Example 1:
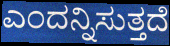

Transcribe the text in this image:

ಎಂದನ್ನಿಸುತ್ತದೆ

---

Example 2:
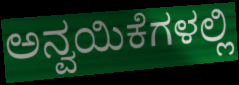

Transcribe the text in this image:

ಅನ್ವಯಿಕೆಗಳಲ್ಲಿ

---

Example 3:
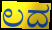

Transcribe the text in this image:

ಲದ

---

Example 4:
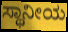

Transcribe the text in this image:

ಸ್ಥಾನೀಯ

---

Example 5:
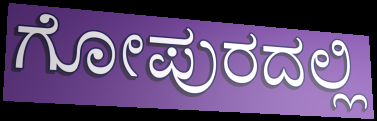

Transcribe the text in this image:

ಗೋಪುರದಲ್ಲಿ